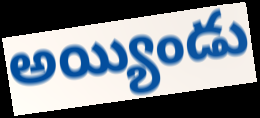
అయ్యిండు